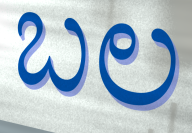
ಬಲ